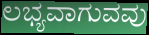
ಲಭ್ಯವಾಗುವವು